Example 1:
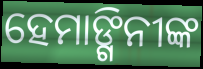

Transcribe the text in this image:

ହେମାଙ୍ଗିନୀଙ୍କ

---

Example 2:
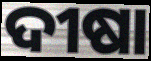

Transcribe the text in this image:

ଦୀଷା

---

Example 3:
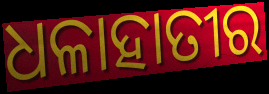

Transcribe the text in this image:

ଧଳାହାତୀର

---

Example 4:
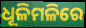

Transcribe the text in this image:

ଧୂଳିମଳିରେ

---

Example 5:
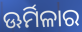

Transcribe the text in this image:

ଊର୍ମିଳାର